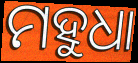
ମହୁଧା